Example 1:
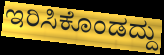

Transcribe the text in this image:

ಇರಿಸಿಕೊಂಡದ್ದು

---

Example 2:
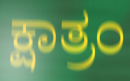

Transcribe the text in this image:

ಕ್ಷಾತ್ರಂ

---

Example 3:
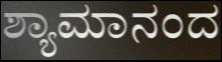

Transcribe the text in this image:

ಶ್ಯಾಮಾನಂದ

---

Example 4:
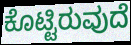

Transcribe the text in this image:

ಕೊಟ್ಟಿರುವುದೆ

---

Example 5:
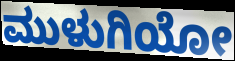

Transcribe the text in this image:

ಮುಳುಗಿಯೋ